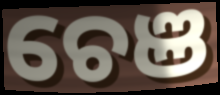
ଚେଞ